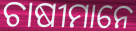
ଚାଷୀମାନେ